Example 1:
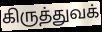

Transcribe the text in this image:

கிருத்துவக்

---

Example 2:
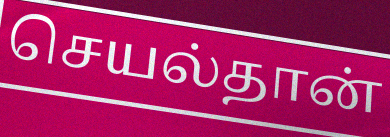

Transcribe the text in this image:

செயல்தான்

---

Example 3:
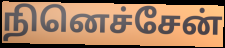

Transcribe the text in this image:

நினெச்சேன்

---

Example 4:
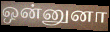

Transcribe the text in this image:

ஒன்னுனா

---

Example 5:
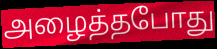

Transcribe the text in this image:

அழைத்தபோது